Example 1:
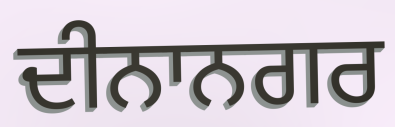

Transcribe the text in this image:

ਦੀਨਾਨਗਰ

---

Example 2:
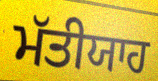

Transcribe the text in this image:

ਮੱਤੀਯਾਹ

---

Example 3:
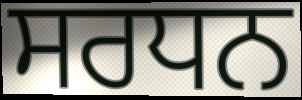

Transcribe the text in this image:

ਸਰਧਨ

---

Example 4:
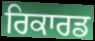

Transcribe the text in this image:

ਰਿਕਾਰਡ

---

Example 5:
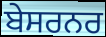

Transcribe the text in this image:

ਬੇਸਰਨਰ